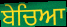
ਬੇਚਿਆ